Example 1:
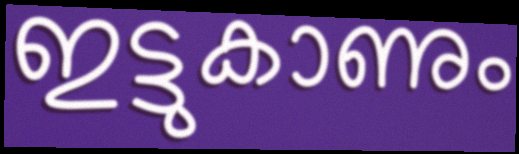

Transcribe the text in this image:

ഇട്ടുകാണും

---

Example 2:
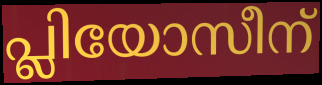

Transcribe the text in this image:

പ്ലിയോസീന്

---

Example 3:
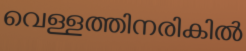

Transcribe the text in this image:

വെള്ളത്തിനരികിൽ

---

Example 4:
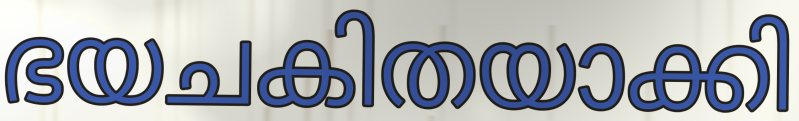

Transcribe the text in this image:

ഭയചകിതയാക്കി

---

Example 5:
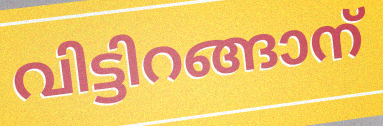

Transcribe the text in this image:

വിട്ടിറങ്ങാന്